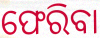
ଫେରିବା